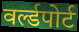
वर्ल्डपोर्ट